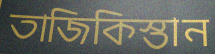
তাজিকিস্তান